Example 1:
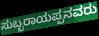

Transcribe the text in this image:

ಸುಬ್ಬರಾಯಪ್ಪನವರು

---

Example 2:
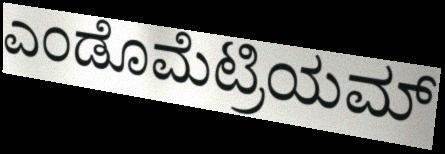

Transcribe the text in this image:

ಎಂಡೊಮೆಟ್ರಿಯಮ್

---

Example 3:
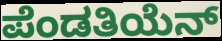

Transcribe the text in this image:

ಪೆಂಡತಿಯೆನ್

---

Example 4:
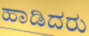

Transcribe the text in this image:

ಹಾಡಿದರು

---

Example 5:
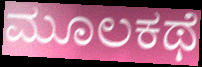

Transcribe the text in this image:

ಮೂಲಕಥೆ